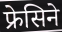
फ्रेसिने